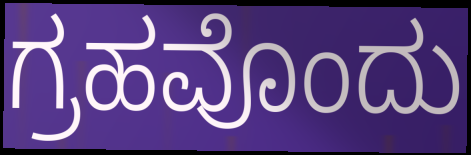
ಗ್ರಹವೊಂದು